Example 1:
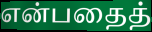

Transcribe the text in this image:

என்பதைத்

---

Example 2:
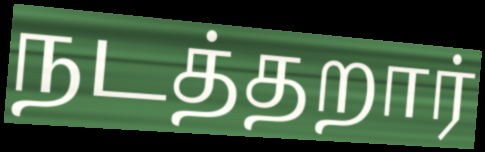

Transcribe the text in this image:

நடத்தறார்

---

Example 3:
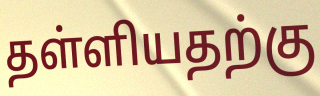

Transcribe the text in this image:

தள்ளியதற்கு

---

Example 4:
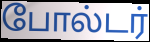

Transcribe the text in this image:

போல்டர்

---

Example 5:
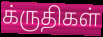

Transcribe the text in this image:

க்ருதிகள்